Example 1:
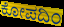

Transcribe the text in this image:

ಕೋಪದಿಂ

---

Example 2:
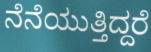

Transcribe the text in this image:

ನೆನೆಯುತ್ತಿದ್ದರೆ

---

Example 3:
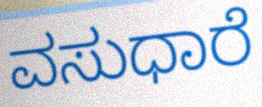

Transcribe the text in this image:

ವಸುಧಾರೆ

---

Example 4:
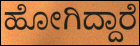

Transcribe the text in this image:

ಹೋಗಿದ್ದಾರೆ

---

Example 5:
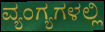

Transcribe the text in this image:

ವ್ಯಂಗ್ಯಗಳಲ್ಲಿ